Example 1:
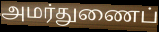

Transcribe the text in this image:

அமர்துணைப்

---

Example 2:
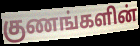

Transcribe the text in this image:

குணங்களின்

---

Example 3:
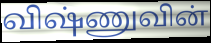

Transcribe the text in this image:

விஷ்ணுவின்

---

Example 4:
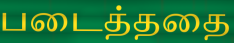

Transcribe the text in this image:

படைத்ததை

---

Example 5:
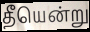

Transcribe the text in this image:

தீயென்று